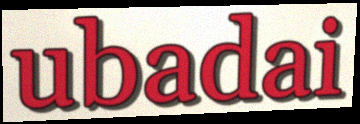
ubadai